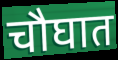
चौघात